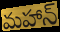
మహాన్